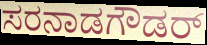
ಸರನಾಡಗೌಡರ್